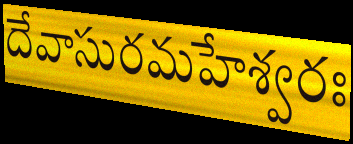
దేవాసురమహేశ్వరః